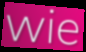
wie